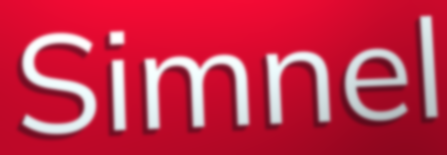
Simnel